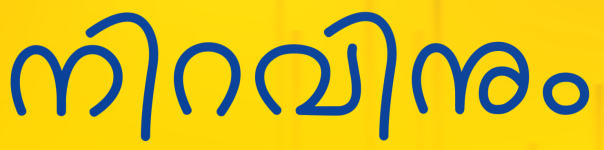
നിറവിനും